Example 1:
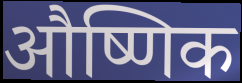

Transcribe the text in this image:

औष्णिक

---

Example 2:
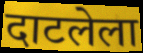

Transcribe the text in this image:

दाटलेला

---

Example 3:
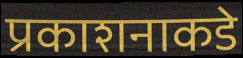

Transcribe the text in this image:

प्रकाशनाकडे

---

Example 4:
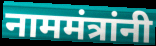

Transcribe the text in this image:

नाममंत्रांनी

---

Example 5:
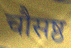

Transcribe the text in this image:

चौसष्ठ